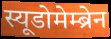
स्यूडोमेम्ब्रेन